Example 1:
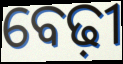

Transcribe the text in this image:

ବେଢ଼ୀ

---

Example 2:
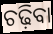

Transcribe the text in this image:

ଚଢ଼ିବା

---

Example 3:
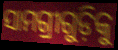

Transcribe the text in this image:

ସାମଗ୍ରୀଗୁଡ଼ିକୁ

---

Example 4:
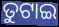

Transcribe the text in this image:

ତୁଟାଇ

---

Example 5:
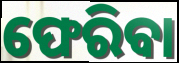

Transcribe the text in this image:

ଫେରିବା